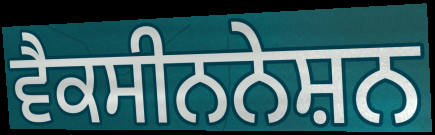
ਵੈਕਸੀਨਨੇਸ਼ਨ